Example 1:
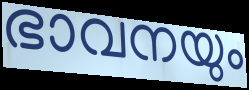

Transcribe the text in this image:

ഭാവനയും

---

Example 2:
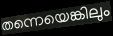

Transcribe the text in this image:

തന്നെയെങ്കിലും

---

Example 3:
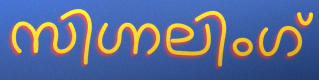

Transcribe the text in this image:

സിഗ്നലിംഗ്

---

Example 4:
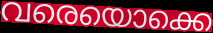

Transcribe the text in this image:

വരെയൊക്കെ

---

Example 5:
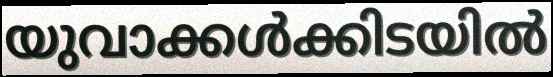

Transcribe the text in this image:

യുവാക്കൾക്കിടയിൽ